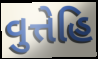
વુત્તેહિ